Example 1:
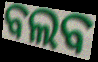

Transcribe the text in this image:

ବଲବ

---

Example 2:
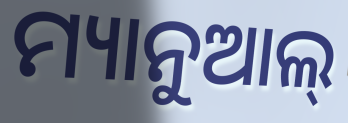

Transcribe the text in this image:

ମ୍ୟାନୁଆଲ୍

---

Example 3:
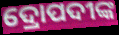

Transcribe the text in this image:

ଦ୍ରୋପଦୀଙ୍କ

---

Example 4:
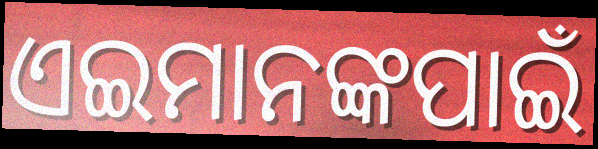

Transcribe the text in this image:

ଏଇମାନଙ୍କପାଇଁ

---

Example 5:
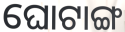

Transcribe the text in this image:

ଘୋଟାଙ୍ଗ